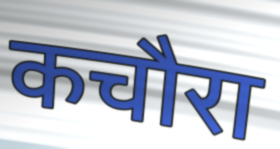
कचौरा